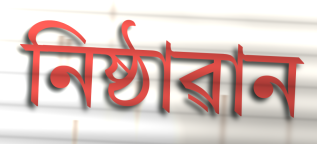
নিষ্ঠাৱান